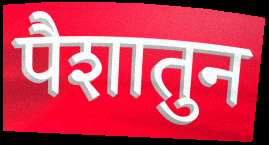
पैशातुन